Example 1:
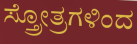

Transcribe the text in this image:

ಸ್ತ್ರೋತ್ರಗಳಿಂದ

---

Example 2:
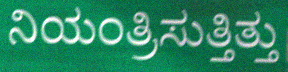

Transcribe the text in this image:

ನಿಯಂತ್ರಿಸುತ್ತಿತ್ತು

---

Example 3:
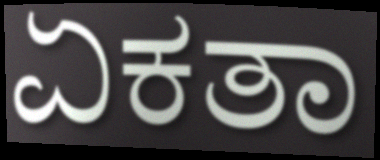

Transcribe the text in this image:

ಏಕತಾ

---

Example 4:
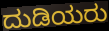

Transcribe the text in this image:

ದುಡಿಯರು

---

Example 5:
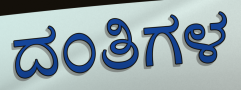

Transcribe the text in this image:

ದಂತಿಗಳ